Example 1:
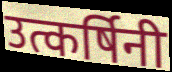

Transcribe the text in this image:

उत्कर्षिनी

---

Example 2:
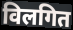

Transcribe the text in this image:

विलगित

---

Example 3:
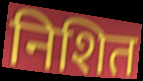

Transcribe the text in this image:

निशित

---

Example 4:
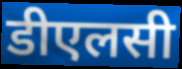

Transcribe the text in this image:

डीएलसी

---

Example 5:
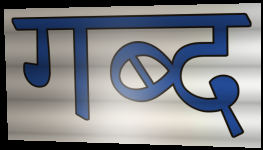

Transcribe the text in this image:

गब्द